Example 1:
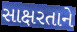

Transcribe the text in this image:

સાક્ષરતાને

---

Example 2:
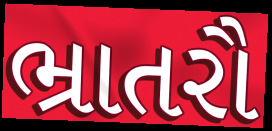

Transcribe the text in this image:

ભ્રાતરૌ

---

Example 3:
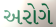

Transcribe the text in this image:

અરોગે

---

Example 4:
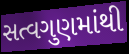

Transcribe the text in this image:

સત્વગુણમાંથી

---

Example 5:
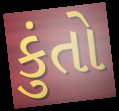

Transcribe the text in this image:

કુંતો